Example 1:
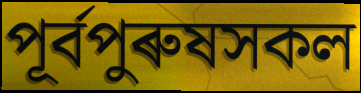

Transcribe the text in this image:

পূৰ্বপুৰুষসকল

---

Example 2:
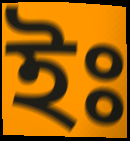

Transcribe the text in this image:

ইঃ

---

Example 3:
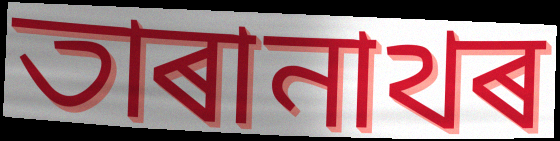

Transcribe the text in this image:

তাৰানাথৰ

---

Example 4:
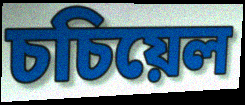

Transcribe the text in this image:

চচিয়েল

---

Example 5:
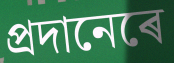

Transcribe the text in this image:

প্ৰদানেৰে